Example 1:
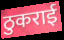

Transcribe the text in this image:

ठुकराई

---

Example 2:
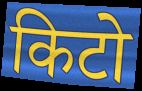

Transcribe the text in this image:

किटो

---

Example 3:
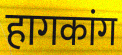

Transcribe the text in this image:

हागकांग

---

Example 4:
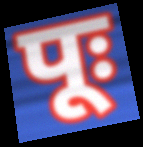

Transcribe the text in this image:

पूः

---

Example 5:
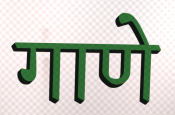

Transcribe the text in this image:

गाणे